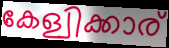
കേള്വിക്കാര്